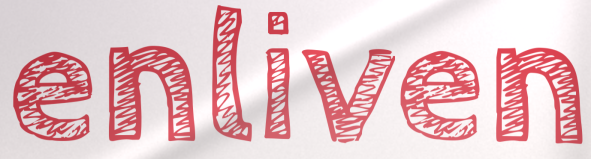
enliven